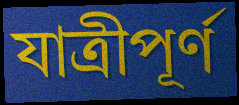
যাত্রীপূর্ণ